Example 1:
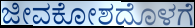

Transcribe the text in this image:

ಜೀವಕೋಶದೊಳಗೆ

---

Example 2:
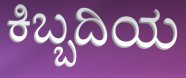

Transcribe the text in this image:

ಕಿಬ್ಬದಿಯ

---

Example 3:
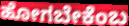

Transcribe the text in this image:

ಹೋಗಬೇಕೆಂಬ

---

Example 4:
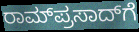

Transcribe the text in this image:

ರಾಮ್‌ಪ್ರಸಾದ್‌ಗೆ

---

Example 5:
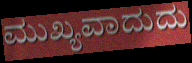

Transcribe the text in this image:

ಮುಖ್ಯವಾದುದು